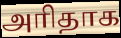
அரிதாக